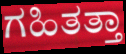
ಗಹಿತತ್ತಾ